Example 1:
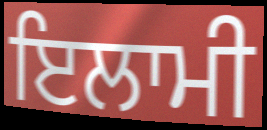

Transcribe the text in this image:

ਇਲਾਮੀ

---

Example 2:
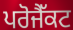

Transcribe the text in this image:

ਪਰੋਜੈੱਕਟ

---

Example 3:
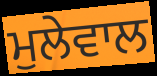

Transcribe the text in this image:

ਮੁਲੇਵਾਲ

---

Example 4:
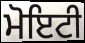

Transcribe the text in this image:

ਮੋਇਟੀ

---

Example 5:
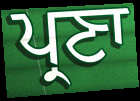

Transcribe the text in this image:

ਪ੍ਰਣਾ